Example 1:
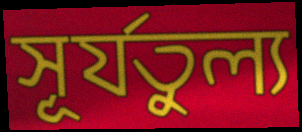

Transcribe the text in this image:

সূর্যতুল্য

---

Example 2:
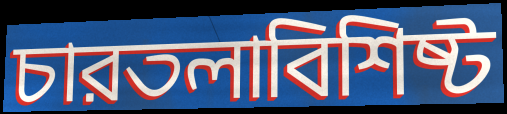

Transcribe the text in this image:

চারতলাবিশিষ্ট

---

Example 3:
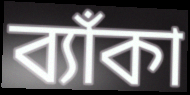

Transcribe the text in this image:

ব্যাঁকা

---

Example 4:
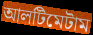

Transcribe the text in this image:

আলটিমেটাম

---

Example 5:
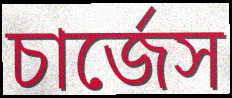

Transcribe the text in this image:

চার্জেস